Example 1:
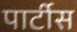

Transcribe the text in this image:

पार्टीस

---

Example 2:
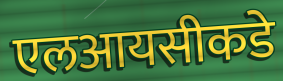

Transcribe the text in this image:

एलआयसीकडे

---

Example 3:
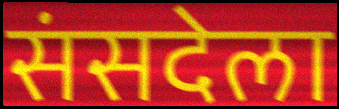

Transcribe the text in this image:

संसदेला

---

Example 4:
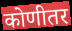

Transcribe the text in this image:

कोणीतर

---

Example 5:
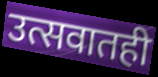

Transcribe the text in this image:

उत्सवातही